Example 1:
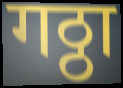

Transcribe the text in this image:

गठ्ठा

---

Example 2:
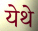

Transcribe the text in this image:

येथे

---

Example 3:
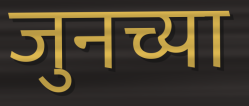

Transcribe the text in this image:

जुनच्या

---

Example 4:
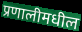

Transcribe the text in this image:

प्रणालीमधील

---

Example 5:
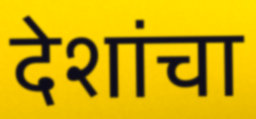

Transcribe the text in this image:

देशांचा